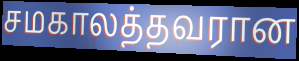
சமகாலத்தவரான